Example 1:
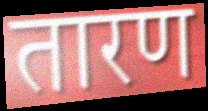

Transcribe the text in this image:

तारण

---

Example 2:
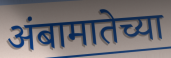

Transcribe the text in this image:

अंबामातेच्या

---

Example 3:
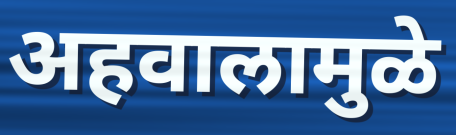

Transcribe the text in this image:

अहवालामुळे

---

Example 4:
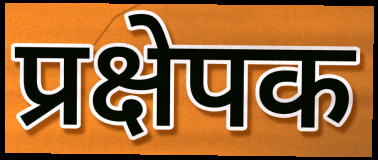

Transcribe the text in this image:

प्रक्षेपक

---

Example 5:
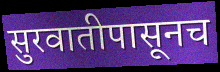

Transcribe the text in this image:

सुरवातीपासूनच